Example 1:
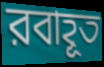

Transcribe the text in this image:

রবাহূত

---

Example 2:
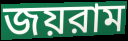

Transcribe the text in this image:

জয়রাম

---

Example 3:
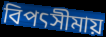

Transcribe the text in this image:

বিপৎসীমায়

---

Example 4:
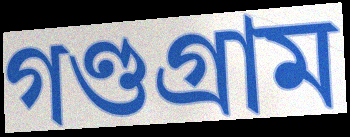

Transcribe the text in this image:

গণ্ডগ্রাম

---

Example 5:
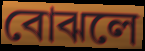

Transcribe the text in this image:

বোঝলে